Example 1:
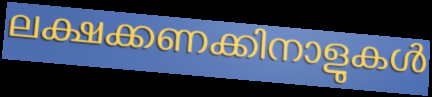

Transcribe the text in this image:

ലക്ഷക്കണക്കിനാളുകൾ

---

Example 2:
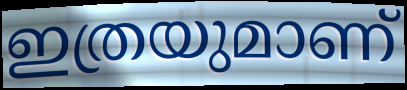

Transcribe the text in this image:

ഇത്രയുമാണ്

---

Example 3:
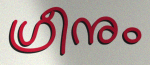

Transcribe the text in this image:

ഗ്രീനും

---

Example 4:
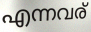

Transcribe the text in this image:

എന്നവര്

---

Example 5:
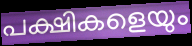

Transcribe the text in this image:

പക്ഷികളെയും